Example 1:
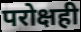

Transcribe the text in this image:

परोक्षही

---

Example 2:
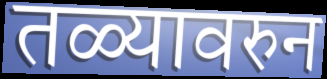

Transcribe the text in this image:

तळ्यावरुन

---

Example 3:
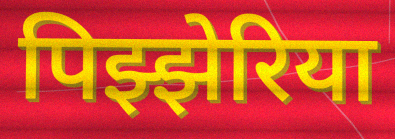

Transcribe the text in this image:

पिझ्झेरिया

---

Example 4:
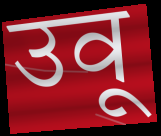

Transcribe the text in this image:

उवू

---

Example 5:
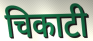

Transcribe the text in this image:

चिकाटी